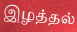
இழத்தல்